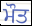
ਮੌਤ